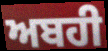
ਅਬਹੀ